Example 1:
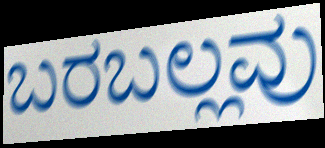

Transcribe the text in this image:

ಬರಬಲ್ಲವು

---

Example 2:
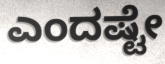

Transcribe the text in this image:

ಎಂದಷ್ಟೇ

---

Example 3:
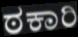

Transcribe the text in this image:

ಠಕಾರಿ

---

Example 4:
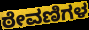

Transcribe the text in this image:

ಠೇವಣಿಗಳ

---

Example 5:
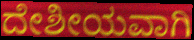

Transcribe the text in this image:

ದೇಶೀಯವಾಗಿ